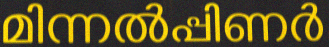
മിന്നൽപ്പിണർ